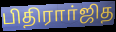
பிதிரார்ஜித